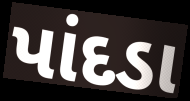
પાંદડા